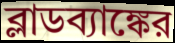
ব্লাডব্যাঙ্কের